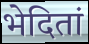
भेदितां